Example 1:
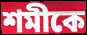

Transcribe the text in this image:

শমীকে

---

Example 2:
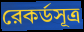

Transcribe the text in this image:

রেকর্ডসূত্র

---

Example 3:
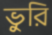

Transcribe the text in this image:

ভুরি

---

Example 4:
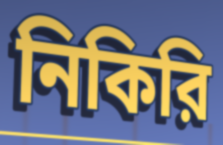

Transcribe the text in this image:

নিকিরি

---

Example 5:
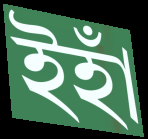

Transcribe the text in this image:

ইহাঁ